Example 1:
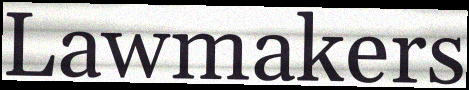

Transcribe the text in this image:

Lawmakers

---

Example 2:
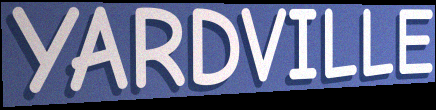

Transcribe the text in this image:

YARDVILLE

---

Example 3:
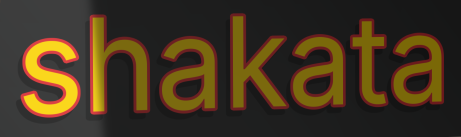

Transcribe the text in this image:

shakata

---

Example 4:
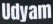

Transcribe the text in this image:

Udyam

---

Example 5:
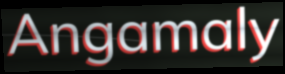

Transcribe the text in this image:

Angamaly